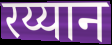
रय्यान